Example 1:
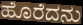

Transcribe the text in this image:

ಹೊರೆದನು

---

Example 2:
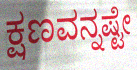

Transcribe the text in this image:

ಕ್ಷಣವನ್ನಷ್ಟೇ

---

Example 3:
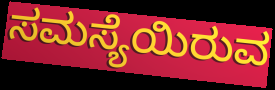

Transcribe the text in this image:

ಸಮಸ್ಯೆಯಿರುವ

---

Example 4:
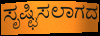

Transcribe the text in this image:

ಸೃಷ್ಟಿಸಲಾಗದ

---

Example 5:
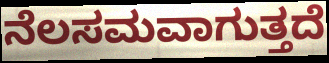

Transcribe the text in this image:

ನೆಲಸಮವಾಗುತ್ತದೆ